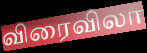
விரைவிலா